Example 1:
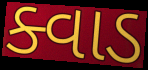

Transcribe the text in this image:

ક્વાડ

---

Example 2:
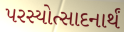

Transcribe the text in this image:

પરસ્યોત્સાદનાર્થં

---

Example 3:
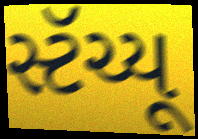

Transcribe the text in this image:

સ્ટૅચ્યૂ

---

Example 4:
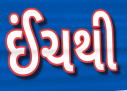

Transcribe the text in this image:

ઈંચથી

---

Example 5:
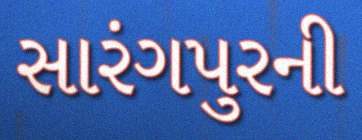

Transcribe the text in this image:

સારંગપુરની